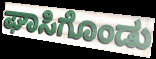
ಘಾಸಿಗೊಂಡು